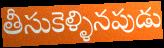
తీసుకెళ్ళినపుడు